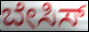
ಬೇಸಿಸ್